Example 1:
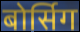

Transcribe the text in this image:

बोर्सिग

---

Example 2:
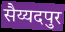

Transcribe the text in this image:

सैय्यदपुर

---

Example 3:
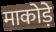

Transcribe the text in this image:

माकोड़े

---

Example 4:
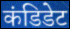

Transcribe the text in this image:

कंडिडेट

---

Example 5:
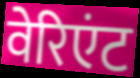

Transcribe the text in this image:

वेरिएंट